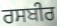
ਰਸਬੀਰ